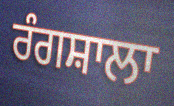
ਰੰਗਸ਼ਾਲਾ